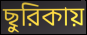
ছুরিকায়